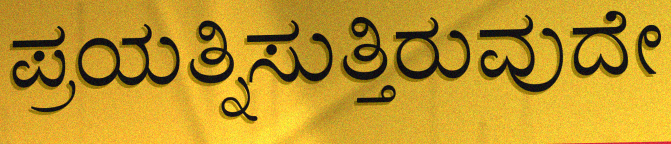
ಪ್ರಯತ್ನಿಸುತ್ತಿರುವುದೇ